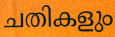
ചതികളും